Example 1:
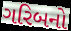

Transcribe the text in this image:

ગરિબનો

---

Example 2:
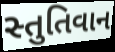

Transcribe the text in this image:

સ્તુતિવાન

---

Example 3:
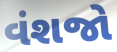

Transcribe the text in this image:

વંશજો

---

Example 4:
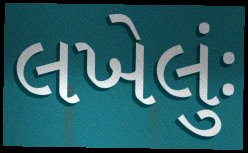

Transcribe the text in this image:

લખેલુંઃ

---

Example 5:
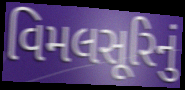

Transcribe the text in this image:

વિમલસૂરિનું